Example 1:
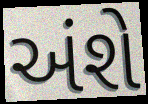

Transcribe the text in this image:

અંશે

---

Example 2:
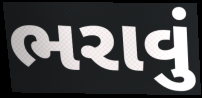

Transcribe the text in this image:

ભરાવું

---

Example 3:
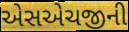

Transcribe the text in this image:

એસએચજીની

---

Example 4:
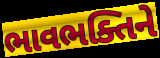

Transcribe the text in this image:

ભાવભક્તિને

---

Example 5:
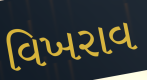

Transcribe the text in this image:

વિખરાવ